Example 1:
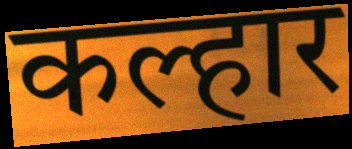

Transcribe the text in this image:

कल्हार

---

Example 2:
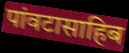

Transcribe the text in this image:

पांवटासाहिब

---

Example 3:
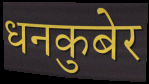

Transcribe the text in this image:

धनकुबेर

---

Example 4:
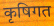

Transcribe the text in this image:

कृषिगत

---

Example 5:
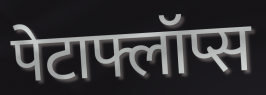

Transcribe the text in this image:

पेटाफ्लॉप्स